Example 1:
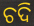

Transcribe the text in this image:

ଚଦି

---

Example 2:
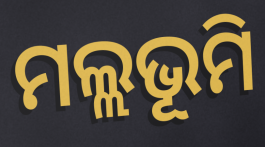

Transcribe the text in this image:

ମଲ୍ଲଭୂମି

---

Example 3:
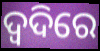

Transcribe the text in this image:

ଦ୍ଵଦିରେ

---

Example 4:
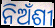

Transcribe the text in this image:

ନିଅଁଶୀ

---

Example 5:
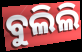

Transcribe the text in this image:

ବୁଲିଲି